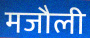
मजौली